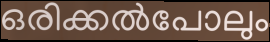
ഒരിക്കൽപോലും